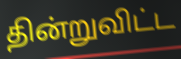
தின்றுவிட்ட